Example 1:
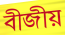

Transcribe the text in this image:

বীজীয়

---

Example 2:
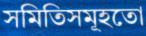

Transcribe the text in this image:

সমিতিসমূহতো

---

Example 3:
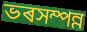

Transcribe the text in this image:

ভৰসম্পন্ন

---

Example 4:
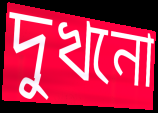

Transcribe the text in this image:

দুখনো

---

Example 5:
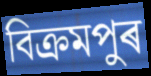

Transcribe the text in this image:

বিক্ৰমপুৰ